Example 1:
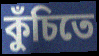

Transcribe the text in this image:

কুঁচিতে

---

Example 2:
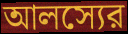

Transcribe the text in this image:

আলস্যের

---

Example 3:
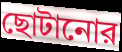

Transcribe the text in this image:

ছোটানোর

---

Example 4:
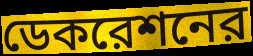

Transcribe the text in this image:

ডেকরেশনের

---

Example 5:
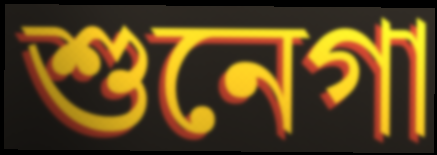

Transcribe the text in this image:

শুনেগা